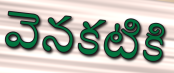
వెనకటికి